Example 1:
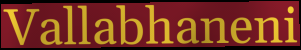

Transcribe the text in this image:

Vallabhaneni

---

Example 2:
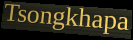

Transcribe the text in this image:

Tsongkhapa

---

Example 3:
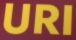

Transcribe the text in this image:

URI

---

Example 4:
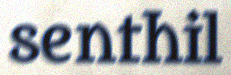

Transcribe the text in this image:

senthil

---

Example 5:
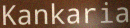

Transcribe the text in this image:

Kankaria